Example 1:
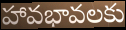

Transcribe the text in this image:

హావభావలకు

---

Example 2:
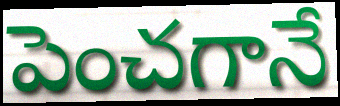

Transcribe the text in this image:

పెంచగానే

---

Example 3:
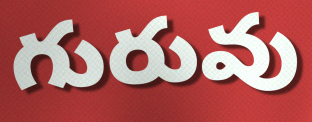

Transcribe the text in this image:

గురువు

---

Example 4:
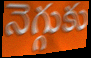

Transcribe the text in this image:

నెగ్గుకు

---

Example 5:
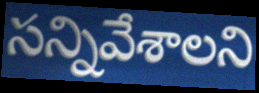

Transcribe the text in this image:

సన్నివేశాలని